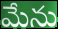
మేను